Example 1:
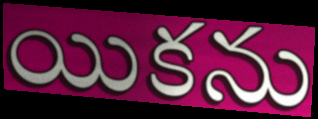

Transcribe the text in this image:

యికను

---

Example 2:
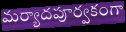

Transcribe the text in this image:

మర్యాదపూర్వకంగా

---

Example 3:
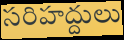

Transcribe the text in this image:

సరిహద్దులు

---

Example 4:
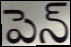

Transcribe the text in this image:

పెన్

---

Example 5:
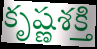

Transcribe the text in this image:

కృష్ణశక్తి